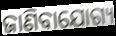
ଜାଣିବାଯୋଗ୍ୟ